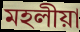
মহলীয়া